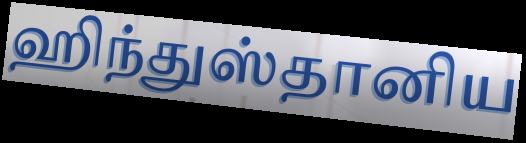
ஹிந்துஸ்தானிய